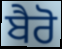
ਬੈਰੋ